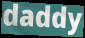
daddy